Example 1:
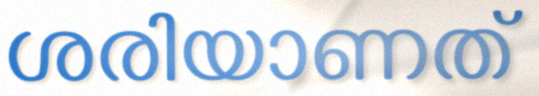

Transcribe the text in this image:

ശരിയാണത്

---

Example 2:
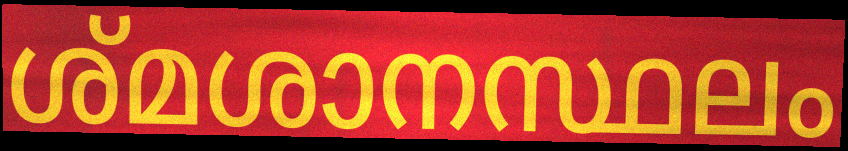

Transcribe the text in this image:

ശ്മശാനസ്ഥലം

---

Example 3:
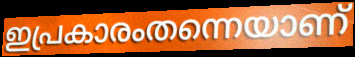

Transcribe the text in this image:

ഇപ്രകാരംതന്നെയാണ്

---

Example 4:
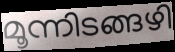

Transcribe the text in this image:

മൂന്നിടങ്ങഴി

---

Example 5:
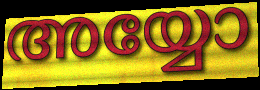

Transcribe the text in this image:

അയ്യോ